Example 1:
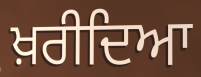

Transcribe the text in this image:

ਖ਼ਰੀਦਿਆ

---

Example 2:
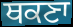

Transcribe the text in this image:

ਥਕਣਾ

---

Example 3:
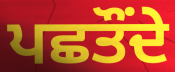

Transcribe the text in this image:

ਪਛਤੌਂਦੇ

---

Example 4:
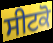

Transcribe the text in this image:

ਸੀਟਕੋ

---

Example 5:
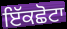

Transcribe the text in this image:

ਇੱਕਛੋਟਾ